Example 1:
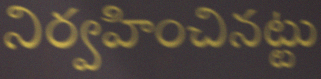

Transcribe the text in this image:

నిర్వహించినట్టు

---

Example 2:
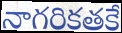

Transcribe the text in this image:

నాగరికతకే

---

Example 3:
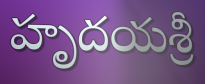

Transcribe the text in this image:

హృదయశ్రీ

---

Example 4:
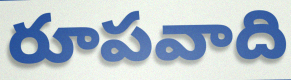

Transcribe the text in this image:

రూపవాది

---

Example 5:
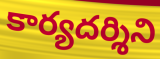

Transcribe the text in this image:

కార్యదర్శిని